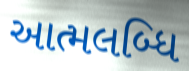
આત્મલબ્ધિ